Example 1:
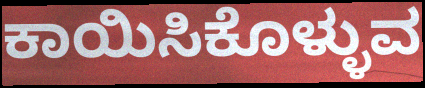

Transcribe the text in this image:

ಕಾಯಿಸಿಕೊಳ್ಳುವ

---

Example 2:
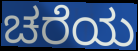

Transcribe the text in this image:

ಚರೆಯ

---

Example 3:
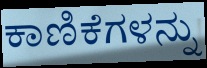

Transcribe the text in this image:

ಕಾಣಿಕೆಗಳನ್ನು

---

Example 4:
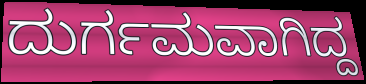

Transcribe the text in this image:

ದುರ್ಗಮವಾಗಿದ್ದ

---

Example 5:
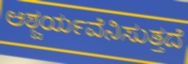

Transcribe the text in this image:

ಆಶ್ಚರ್ಯವೆನಿಸುತ್ತದೆ